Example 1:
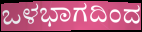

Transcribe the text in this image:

ಒಳಭಾಗದಿಂದ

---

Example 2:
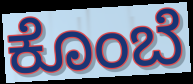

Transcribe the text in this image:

ಕೊಂಬೆ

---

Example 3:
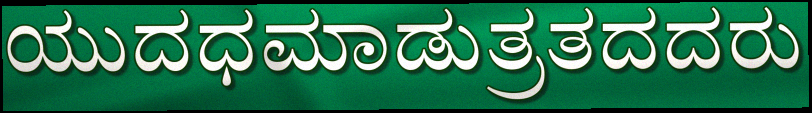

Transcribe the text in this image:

ಯುದಧಮಾಡುತ್ರತದದರು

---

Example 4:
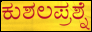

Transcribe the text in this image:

ಕುಶಲಪ್ರಶ್ನೆ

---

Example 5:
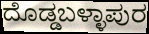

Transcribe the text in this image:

ದೊಡ್ಡಬಳ್ಳಾಪುರ